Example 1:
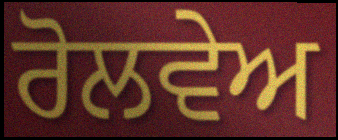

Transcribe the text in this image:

ਰੋਲਵੇਅ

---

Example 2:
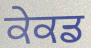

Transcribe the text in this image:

ਕੇਕਡ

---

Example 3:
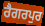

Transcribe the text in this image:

ਰੈਗਰਪੁਰ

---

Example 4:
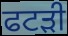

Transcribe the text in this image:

ਫਟੜੀ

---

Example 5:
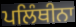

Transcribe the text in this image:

ਪਲਿੰਥੀਨਾ